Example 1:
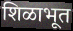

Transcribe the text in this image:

शिळाभूत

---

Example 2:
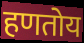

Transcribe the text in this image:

हणतोय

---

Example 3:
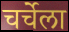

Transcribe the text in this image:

चर्चेला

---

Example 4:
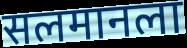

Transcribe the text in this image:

सलमानला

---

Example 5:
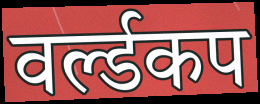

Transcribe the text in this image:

वर्ल्डकप